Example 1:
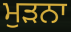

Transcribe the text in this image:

ਮੁਡ਼ਨਾ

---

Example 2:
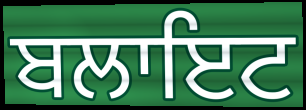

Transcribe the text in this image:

ਬਲਾਇਟ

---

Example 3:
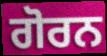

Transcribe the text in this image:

ਗੋਰਨ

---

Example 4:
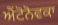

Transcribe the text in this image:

ਐਂਟੋਨੋਵਕਾ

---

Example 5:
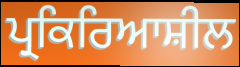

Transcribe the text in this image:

ਪ੍ਰਕਿਰਿਆਸ਼ੀਲ